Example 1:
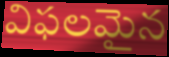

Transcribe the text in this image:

విఫలమైన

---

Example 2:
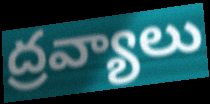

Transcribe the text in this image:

ద్రవ్యాలు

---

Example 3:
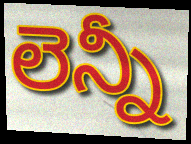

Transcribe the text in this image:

లెన్నీ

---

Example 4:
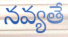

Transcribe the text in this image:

నవ్యతే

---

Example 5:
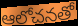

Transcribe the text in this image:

ఆలోచనతో